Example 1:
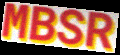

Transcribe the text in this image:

MBSR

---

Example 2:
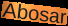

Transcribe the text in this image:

Abosar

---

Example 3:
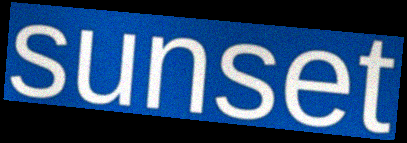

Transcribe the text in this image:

sunset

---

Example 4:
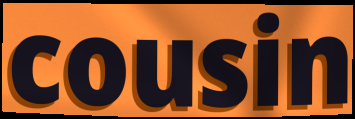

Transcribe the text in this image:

cousin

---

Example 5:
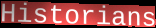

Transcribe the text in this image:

Historians